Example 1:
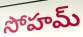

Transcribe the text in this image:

సోహమ్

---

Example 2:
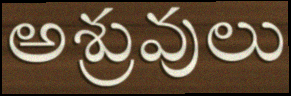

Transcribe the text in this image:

అశ్రువులు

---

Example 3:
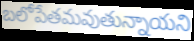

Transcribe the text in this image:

బలోపేతమవుతున్నాయని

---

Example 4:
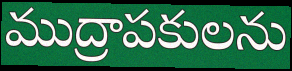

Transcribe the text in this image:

ముద్రాపకులను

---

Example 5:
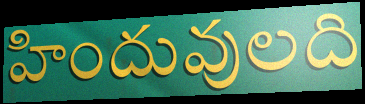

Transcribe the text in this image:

హిందువులది